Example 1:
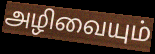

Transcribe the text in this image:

அழிவையும்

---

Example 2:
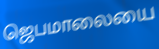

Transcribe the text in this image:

ஜெபமாலையை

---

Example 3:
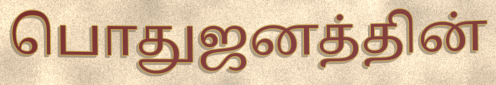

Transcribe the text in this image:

பொதுஜனத்தின்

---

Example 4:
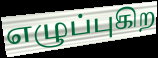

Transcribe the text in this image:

எழுப்புகிற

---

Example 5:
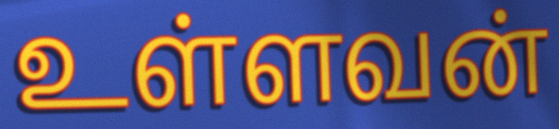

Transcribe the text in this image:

உள்ளவன்